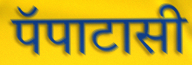
पॅपाटासी